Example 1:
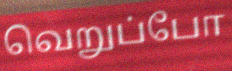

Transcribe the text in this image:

வெறுப்போ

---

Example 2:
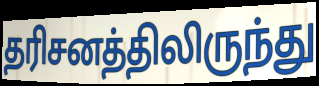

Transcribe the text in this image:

தரிசனத்திலிருந்து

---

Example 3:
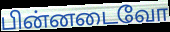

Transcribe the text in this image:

பின்னடைவோ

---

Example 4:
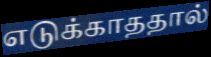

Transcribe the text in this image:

எடுக்காததால்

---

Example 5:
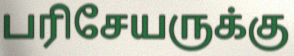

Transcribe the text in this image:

பரிசேயருக்கு